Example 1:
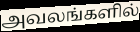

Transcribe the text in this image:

அவலங்களில்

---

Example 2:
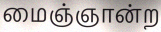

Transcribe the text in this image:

மைஞ்ஞான்ற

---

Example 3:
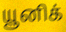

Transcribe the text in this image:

யூனிக்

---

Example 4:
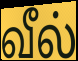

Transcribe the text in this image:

வீல்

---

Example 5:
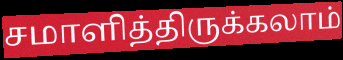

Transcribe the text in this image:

சமாளித்திருக்கலாம்